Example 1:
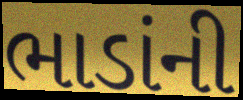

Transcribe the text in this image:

ભાડાંની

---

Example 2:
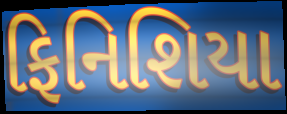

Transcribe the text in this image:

ફિનિશિયા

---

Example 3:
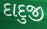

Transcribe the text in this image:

દાદુજી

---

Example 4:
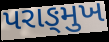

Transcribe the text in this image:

પરાઙ્મુખ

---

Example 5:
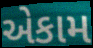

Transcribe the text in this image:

એકામ